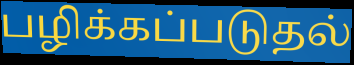
பழிக்கப்படுதல்